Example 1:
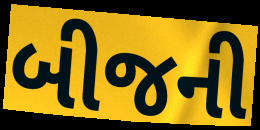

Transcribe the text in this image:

બીજની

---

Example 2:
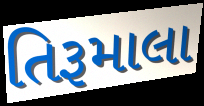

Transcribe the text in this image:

તિરૂમાલા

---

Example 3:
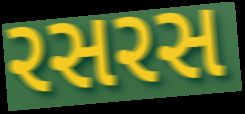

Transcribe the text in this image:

રસરસ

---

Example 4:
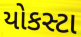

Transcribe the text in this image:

યોકસ્ટા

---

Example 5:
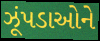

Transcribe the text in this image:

ઝૂંપડાઓને